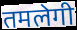
तमलेगी